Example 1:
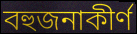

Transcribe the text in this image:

বহুজনাকীর্ণ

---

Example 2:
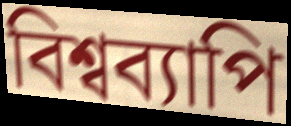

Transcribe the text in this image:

বিশ্বব্যাপি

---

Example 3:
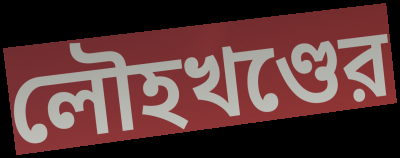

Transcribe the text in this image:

লৌহখণ্ডের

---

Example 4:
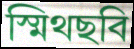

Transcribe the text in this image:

স্মিথছবি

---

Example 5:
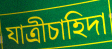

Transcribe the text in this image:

যাত্রীচাহিদা